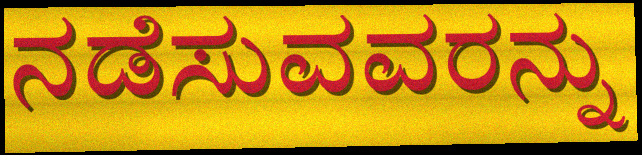
ನಡೆಸುವವರನ್ನು